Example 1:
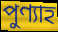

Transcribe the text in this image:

পুণ্যাহ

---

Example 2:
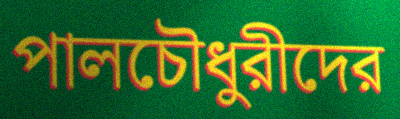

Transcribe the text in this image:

পালচৌধুরীদের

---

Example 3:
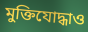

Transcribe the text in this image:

মুক্তিযোদ্ধাও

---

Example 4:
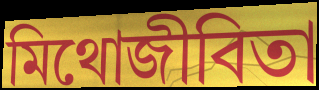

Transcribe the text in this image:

মিথোজীবিতা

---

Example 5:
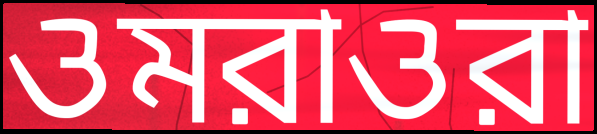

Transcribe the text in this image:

ওমরাওরা